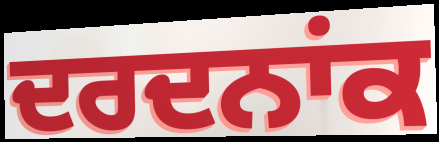
ਦਰਦਨਾਂਕ